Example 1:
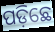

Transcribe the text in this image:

ପଡ଼ିଛେ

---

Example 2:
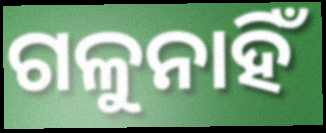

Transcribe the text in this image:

ଗଳୁନାହିଁ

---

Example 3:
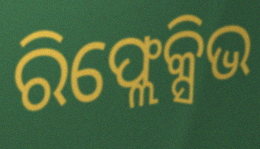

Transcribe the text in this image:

ରିଫ୍ଲେକ୍ସିଭ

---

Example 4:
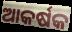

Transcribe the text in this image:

ଆକର୍ଷକ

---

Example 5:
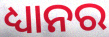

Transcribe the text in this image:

ଧ୍ୟାନର